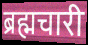
ब्रह्मचारी